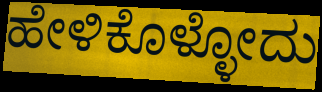
ಹೇಳಿಕೊಳ್ಳೋದು